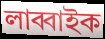
লাব্বাইক